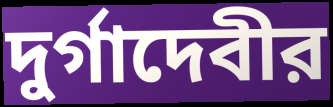
দুর্গাদেবীর